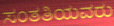
ಸಂತತಿಯವರು